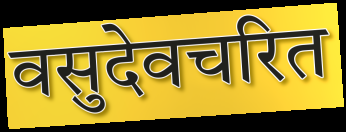
वसुदेवचरित